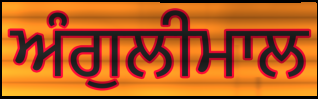
ਅੰਗੁਲੀਮਾਲ